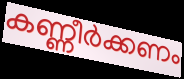
കണ്ണീർക്കണം